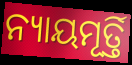
ନ୍ୟାୟମୂର୍ତ୍ତି